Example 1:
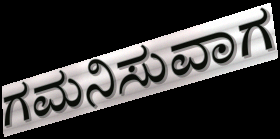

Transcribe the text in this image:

ಗಮನಿಸುವಾಗ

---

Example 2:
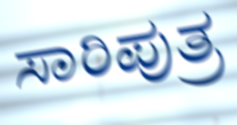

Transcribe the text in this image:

ಸಾರಿಪುತ್ರ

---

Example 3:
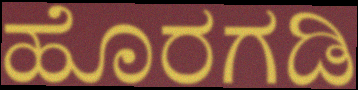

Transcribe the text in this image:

ಹೊರಗಡಿ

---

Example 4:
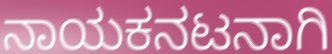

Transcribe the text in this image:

ನಾಯಕನಟನಾಗಿ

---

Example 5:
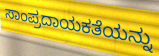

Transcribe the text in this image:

ಸಾಂಪ್ರದಾಯಕತೆಯನ್ನು